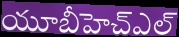
యూబీహెచ్ఎల్